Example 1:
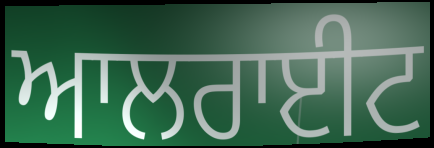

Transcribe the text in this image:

ਆਲਰਾਈਟ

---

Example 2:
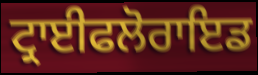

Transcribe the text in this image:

ਟ੍ਰਾਈਫਲੋਰਾਇਡ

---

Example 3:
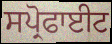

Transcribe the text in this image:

ਸਪ੍ਰੋਫਾਈਟ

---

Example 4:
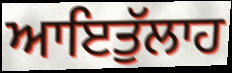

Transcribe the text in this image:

ਆਇਤੁੱਲਾਹ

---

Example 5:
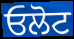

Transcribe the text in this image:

ਓਲੋਟ